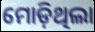
ମୋଡ଼ିଥିଲା